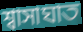
শ্বাসাঘাত